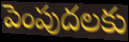
పెంపుదలకు